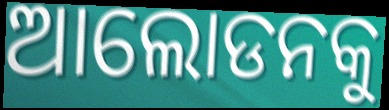
ଆଲୋଡନକୁ